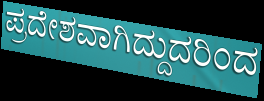
ಪ್ರದೇಶವಾಗಿದ್ದುದರಿಂದ